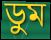
ডুম